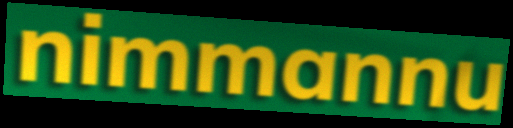
nimmannu